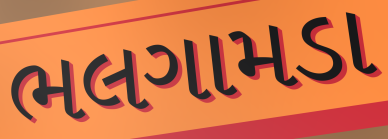
ભલગામડા